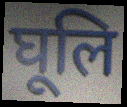
घूलि